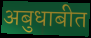
अबुधाबीत